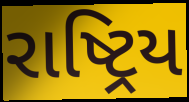
રાષ્ટ્રિય